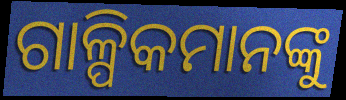
ଗାଳ୍ପିକମାନଙ୍କୁ